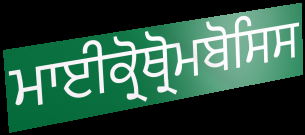
ਮਾਈਕ੍ਰੋਥ੍ਰੋਮਬੋਸਿਸ